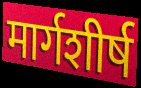
मार्गशीर्ष